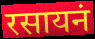
रसायनं